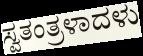
ಸ್ವತಂತ್ರಳಾದಳು